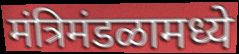
मंत्रिमंडळामध्ये